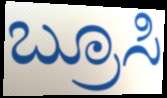
ಬ್ರೂಸಿ